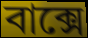
বাক্সে